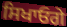
ਸਿਖਾਓਗੇ